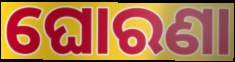
ଘୋରଣା